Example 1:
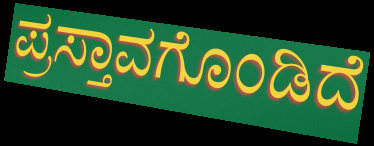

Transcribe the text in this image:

ಪ್ರಸ್ತಾವಗೊಂಡಿದೆ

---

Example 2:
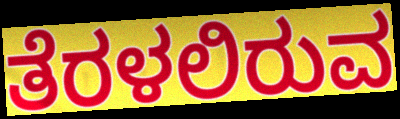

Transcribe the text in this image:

ತೆರಳಲಿರುವ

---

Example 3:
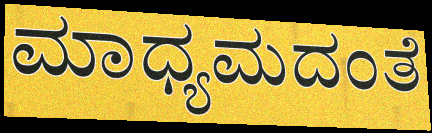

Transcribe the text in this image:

ಮಾಧ್ಯಮದಂತೆ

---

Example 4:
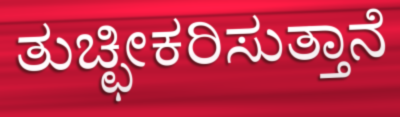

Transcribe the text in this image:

ತುಚ್ಛೀಕರಿಸುತ್ತಾನೆ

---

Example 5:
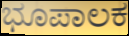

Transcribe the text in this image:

ಭೂಪಾಲಕ